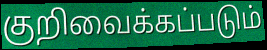
குறிவைக்கப்படும்